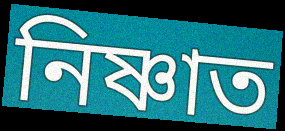
নিষ্ণাত